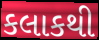
કલાકથી